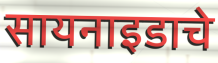
सायनाइडाचे